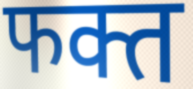
फक्‍त